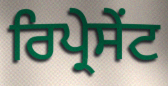
ਰਿਪ੍ਰੇਸੇੰਟ